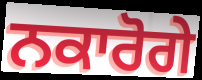
ਨਕਾਰੋਗੇ